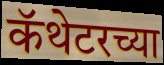
कॅथेटरच्या